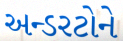
અન્ડરટોને